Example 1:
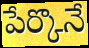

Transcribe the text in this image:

పేర్కొనే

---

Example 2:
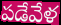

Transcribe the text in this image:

పడేవేళ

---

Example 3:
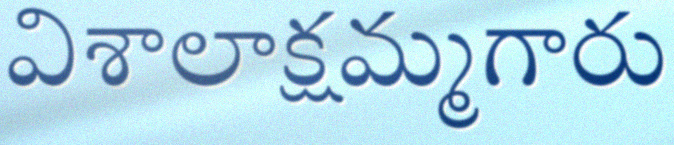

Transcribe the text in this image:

విశాలాక్షమ్మగారు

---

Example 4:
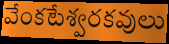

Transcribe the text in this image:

వేంకటేశ్వరకవులు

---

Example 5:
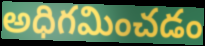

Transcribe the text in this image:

అధిగమించడం